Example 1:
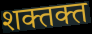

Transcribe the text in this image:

शक्तक्त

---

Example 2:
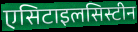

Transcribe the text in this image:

एसिटाइलसिस्टीन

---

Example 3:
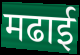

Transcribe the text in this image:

मढाई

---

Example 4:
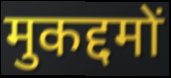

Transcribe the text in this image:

मुकद्दमों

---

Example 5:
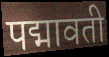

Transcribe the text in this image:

पद्मावती